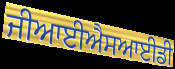
ਜੀਆਈਐਸਆਈਡੀ